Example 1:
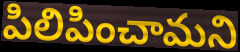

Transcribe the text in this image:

పిలిపించామని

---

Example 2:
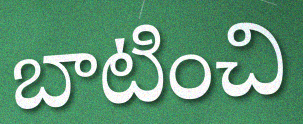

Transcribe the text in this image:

బాటించి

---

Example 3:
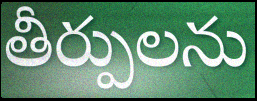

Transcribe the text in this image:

తీర్పులను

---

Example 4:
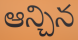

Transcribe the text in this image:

ఆన్చిన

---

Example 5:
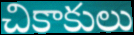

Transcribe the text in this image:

చికాకులు